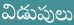
విడుపులు